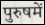
पुरुषमें